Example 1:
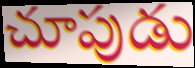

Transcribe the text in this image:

చూపుడు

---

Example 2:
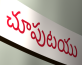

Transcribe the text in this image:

చూపుటయు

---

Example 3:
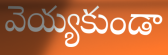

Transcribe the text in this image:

వెయ్యకుండా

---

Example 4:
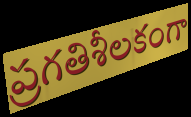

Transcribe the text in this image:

ప్రగతిశీలకంగా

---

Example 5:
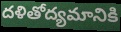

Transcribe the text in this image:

దళితోద్యమానికి